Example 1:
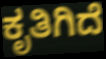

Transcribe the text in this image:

ಕೃತಿಗಿದೆ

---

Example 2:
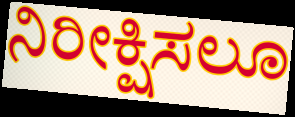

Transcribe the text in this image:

ನಿರೀಕ್ಷಿಸಲೂ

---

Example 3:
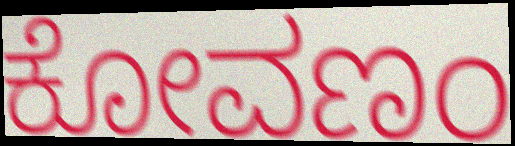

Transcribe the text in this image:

ಕೋವಣಂ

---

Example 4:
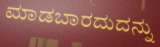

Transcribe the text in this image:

ಮಾಡಬಾರದುದನ್ನು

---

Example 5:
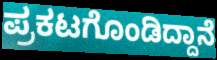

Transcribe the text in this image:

ಪ್ರಕಟಗೊಂಡಿದ್ದಾನೆ